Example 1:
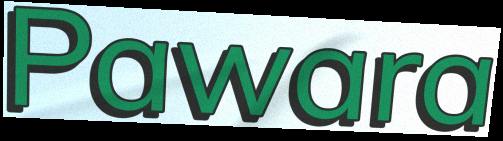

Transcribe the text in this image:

Pawara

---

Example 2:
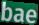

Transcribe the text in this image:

bae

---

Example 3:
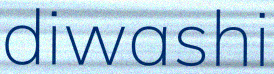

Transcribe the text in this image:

diwashi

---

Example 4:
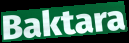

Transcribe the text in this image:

Baktara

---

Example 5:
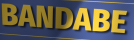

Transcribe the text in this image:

BANDABE